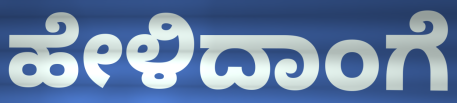
ಹೇಳಿದಾಂಗೆ